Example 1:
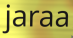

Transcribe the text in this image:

jaraa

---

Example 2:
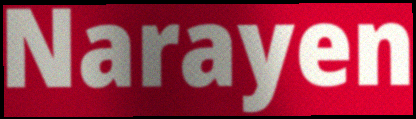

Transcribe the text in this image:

Narayen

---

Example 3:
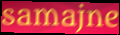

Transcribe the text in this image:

samajne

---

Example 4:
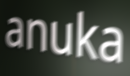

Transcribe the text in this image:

anuka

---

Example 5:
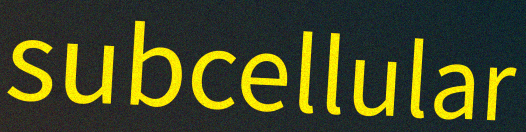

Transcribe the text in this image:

subcellular